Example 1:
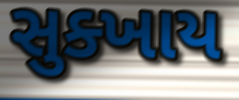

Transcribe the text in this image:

સુક્ખાય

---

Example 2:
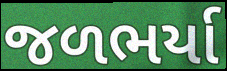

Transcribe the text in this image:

જળભર્યા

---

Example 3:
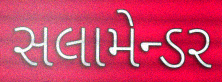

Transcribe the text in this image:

સલામેન્ડર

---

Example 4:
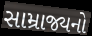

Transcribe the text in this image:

સામ્રાજ્યનો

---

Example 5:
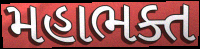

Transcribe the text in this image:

મહાભક્ત